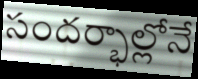
సందర్భాల్లోనే